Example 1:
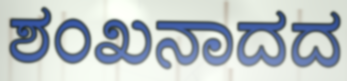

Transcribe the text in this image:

ಶಂಖನಾದದ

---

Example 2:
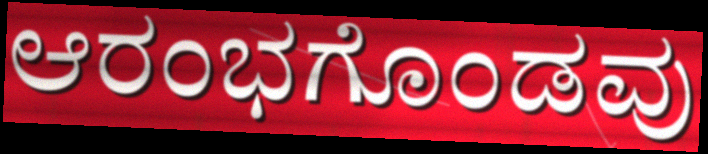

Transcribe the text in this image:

ಆರಂಭಗೊಂಡವು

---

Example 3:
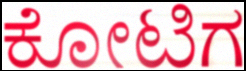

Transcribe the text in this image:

ಕೋಟಿಗ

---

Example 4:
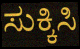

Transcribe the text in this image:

ಸುಕ್ಕಿಸಿ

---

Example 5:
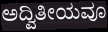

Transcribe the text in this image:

ಅದ್ವಿತೀಯವೂ